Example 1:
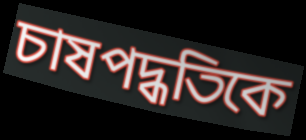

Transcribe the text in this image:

চাষপদ্ধতিকে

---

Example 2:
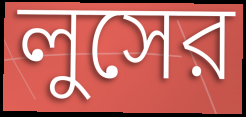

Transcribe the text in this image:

লুসের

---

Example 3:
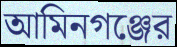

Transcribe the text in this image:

আমিনগঞ্জের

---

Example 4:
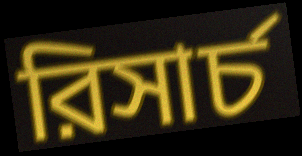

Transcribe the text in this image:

রিসার্চ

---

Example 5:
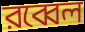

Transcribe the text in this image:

রব্বেল